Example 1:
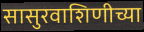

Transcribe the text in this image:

सासुरवाशिणीच्या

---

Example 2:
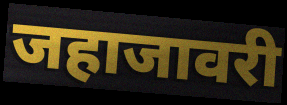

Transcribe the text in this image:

जहाजावरी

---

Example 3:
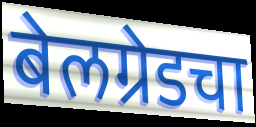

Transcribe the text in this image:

बेलग्रेडचा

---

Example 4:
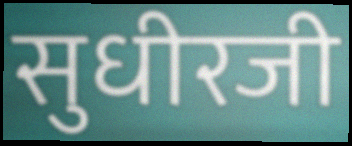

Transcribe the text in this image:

सुधीरजी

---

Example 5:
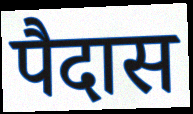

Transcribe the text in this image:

पैदास